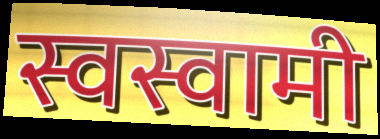
स्वस्वामी